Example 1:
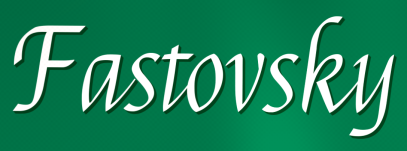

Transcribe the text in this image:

Fastovsky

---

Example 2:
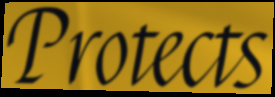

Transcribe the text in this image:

Protects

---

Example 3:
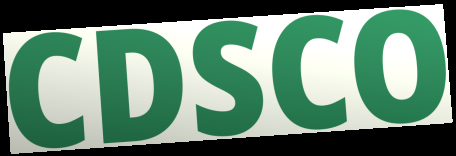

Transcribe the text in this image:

CDSCO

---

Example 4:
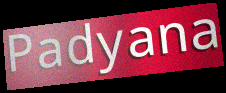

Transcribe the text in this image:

Padyana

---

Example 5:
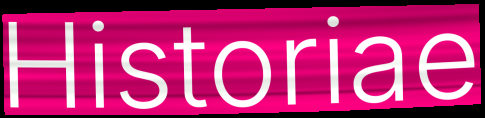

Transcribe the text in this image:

Historiae